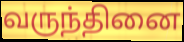
வருந்தினை